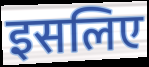
इसलिए